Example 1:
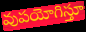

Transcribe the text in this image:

వుపయోగిస్తూ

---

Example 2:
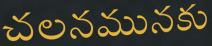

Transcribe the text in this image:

చలనమునకు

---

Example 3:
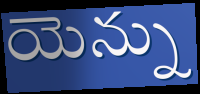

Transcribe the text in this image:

యెన్ను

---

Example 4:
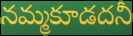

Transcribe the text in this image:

నమ్మకూడదనీ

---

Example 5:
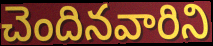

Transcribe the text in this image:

చెందినవారిని